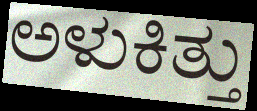
ಅಳುಕಿತ್ತು